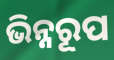
ଭିନ୍ନରୂପ